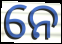
ନେ